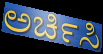
ಅರ್ಚಿಸಿ